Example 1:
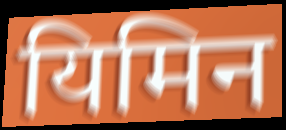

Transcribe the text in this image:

यिमिन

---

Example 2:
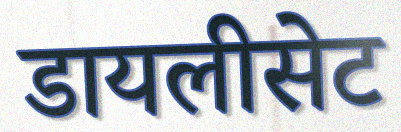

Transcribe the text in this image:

डायलीसेट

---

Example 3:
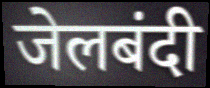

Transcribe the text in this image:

जेलबंदी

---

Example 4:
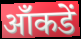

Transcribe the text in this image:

आँकडें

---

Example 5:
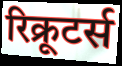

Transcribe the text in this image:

रिक्रूटर्स